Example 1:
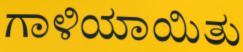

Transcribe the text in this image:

ಗಾಳಿಯಾಯಿತು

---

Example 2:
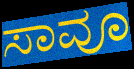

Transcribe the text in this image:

ಸಾವೂ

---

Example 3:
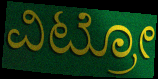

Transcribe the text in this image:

ವಿಟ್ರೋ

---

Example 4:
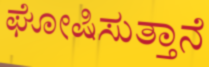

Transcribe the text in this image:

ಘೋಷಿಸುತ್ತಾನೆ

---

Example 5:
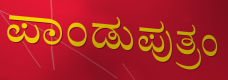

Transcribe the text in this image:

ಪಾಂಡುಪುತ್ರಂ